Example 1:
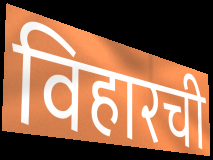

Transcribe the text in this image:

विहारची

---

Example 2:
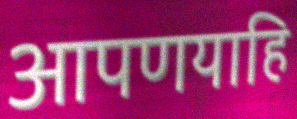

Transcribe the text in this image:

आपणयाहि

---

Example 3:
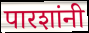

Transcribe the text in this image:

पारशांनी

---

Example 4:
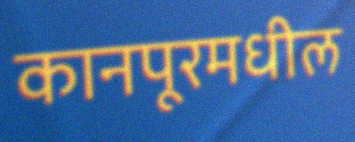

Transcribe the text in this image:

कानपूरमधील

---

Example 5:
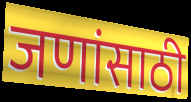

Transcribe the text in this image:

जणांसाठी